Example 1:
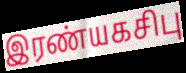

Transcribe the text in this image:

இரண்யகசிபு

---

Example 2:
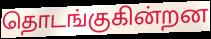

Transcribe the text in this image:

தொடங்குகின்றன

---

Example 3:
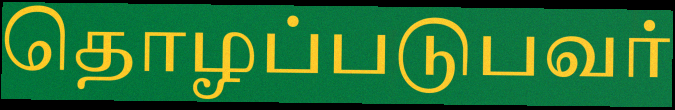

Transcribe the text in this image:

தொழப்படுபவர்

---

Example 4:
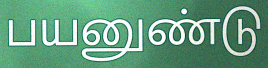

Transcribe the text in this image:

பயனுண்டு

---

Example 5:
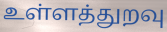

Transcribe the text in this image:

உள்ளத்துறவு